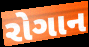
રોગાન